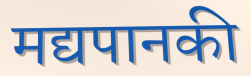
मद्यपानकी